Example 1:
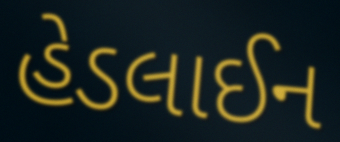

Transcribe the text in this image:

હેડલાઈન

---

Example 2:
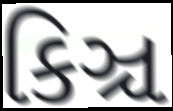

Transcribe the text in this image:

કિઞ્ચ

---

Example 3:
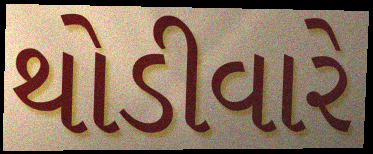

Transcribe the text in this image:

થોડીવારે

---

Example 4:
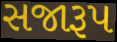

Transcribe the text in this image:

સજારૂપ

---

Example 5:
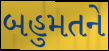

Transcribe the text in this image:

બહુમતને